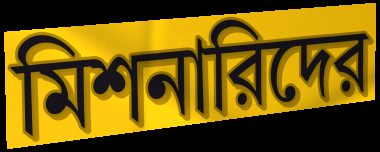
মিশনারিদের